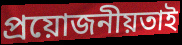
প্রয়োজনীয়তাই